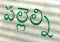
పల్లెల్ని